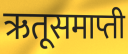
ऋतूसमाप्ती